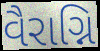
વૈરાગ્નિ